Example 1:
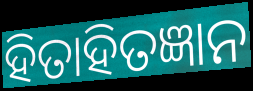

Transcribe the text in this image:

ହିତାହିତଜ୍ଞାନ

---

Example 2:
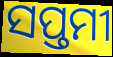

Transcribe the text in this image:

ସପ୍ତମୀ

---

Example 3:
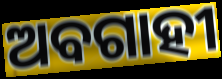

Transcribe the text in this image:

ଅବଗାହୀ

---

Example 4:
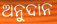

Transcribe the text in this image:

ଅନୁଦାନ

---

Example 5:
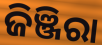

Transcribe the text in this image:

ଜିଞ୍ଜିରା